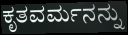
ಕೃತವರ್ಮನನ್ನು